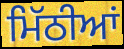
ਮਿੱਠੀਆਂ